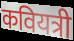
कवियत्री